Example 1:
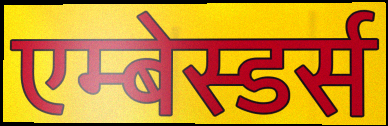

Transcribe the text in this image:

एम्बेस्डर्स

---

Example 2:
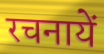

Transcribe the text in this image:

रचनायें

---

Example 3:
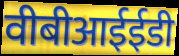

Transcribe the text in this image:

वीबीआईईडी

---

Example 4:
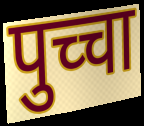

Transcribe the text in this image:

पुच्चा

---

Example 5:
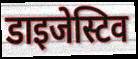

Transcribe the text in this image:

डाइजेस्टिव